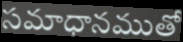
సమాధానముతో